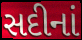
સદીનાં